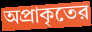
অপ্রাকৃতের